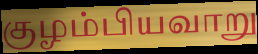
குழம்பியவாறு